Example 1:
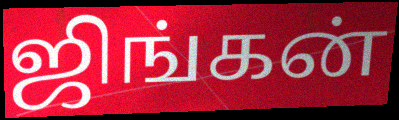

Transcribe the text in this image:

ஜிங்கன்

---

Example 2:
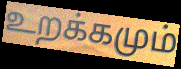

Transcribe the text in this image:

உறக்கமும்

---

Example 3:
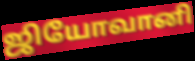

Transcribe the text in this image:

ஜியோவானி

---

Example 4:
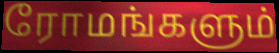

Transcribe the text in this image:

ரோமங்களும்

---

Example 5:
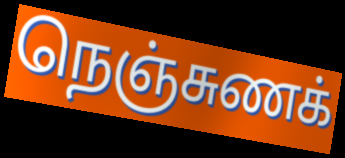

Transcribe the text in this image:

நெஞ்சுணக்